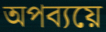
অপব্যয়ে